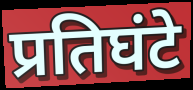
प्रतिघंटे